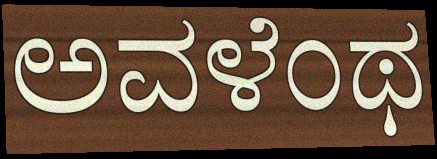
ಅವಳೆಂಥ